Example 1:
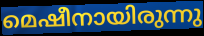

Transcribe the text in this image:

മെഷീനായിരുന്നു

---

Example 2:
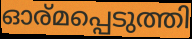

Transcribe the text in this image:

ഓര്മപ്പെടുത്തി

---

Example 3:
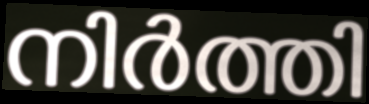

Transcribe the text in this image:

നിർത്തി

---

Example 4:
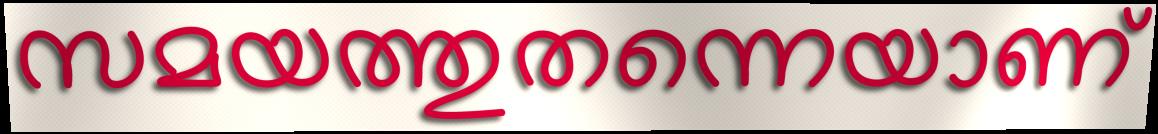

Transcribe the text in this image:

സമയത്തുതന്നെയാണ്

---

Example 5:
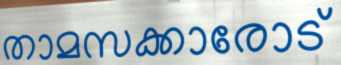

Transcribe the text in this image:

താമസക്കാരോട്